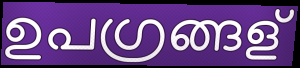
ഉപഗ്രങ്ങള്